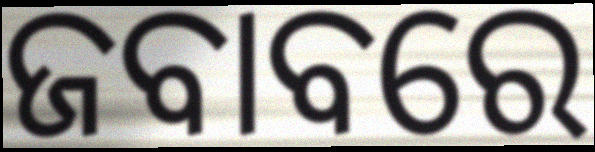
ଜବାବରେ